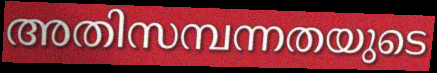
അതിസമ്പന്നതയുടെ